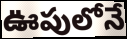
ఊపులోనే